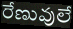
రేణువులే